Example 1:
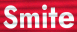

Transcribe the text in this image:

Smite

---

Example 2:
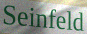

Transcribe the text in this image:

Seinfeld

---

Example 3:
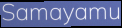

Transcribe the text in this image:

Samayamu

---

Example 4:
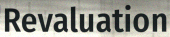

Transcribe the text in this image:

Revaluation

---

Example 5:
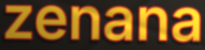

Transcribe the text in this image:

zenana